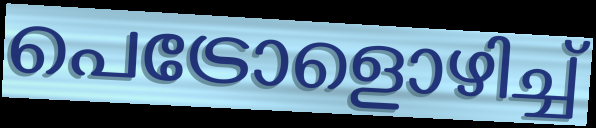
പെട്രോളൊഴിച്ച്